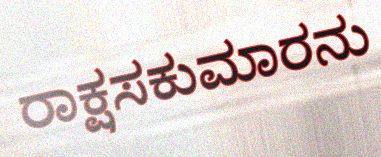
ರಾಕ್ಷಸಕುಮಾರನು